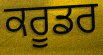
ਕਰੂਡਰ